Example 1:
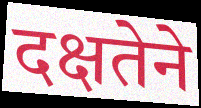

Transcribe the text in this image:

दक्षतेने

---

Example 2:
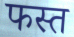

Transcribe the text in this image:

फस्त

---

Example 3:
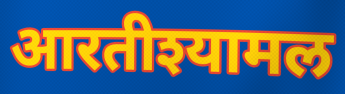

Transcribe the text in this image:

आरतीश्यामल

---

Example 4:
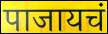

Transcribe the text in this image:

पाजायचं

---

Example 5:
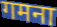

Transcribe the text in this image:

गमना